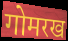
गोमरख